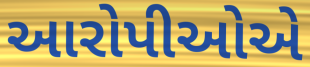
આરોપીઓએ